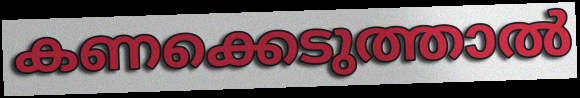
കണക്കെടുത്താൽ